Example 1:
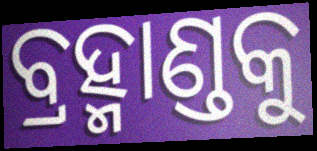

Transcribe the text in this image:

ବ୍ରହ୍ମାଣ୍ଡକୁ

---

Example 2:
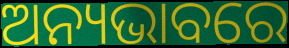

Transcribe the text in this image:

ଅନ୍ୟଭାବରେ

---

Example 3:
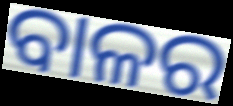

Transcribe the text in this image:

ବାଳର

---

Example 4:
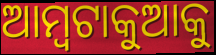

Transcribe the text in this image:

ଆମ୍ବଟାକୁଆକୁ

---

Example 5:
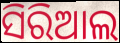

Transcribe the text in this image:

ସିରିଆଲ